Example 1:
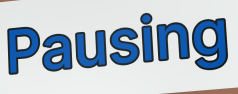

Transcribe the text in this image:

Pausing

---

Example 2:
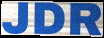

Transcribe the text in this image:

JDR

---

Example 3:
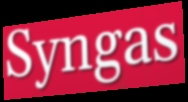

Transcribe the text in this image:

Syngas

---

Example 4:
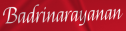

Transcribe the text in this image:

Badrinarayanan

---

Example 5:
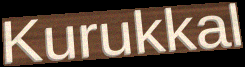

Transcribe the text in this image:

Kurukkal